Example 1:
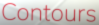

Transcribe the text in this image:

Contours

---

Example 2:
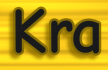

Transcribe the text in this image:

Kra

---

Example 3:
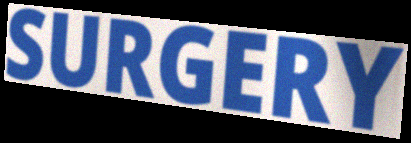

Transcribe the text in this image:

SURGERY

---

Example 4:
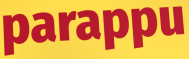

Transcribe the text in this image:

parappu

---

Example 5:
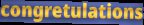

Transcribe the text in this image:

congretulations